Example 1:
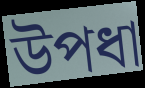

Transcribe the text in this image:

উপধা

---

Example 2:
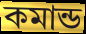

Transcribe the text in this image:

কমান্ড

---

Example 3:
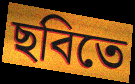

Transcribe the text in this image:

ছবিতে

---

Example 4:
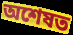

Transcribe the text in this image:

অশেষত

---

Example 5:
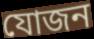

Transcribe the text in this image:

যোজন